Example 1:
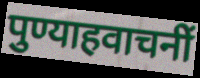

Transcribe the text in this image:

पुण्याहवाचनीं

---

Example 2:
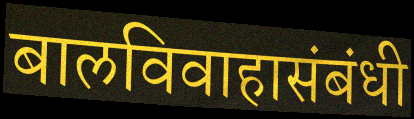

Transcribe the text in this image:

बालविवाहासंबंधी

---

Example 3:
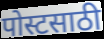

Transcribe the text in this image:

पोस्टसाठी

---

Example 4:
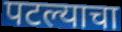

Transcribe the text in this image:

पटल्याचा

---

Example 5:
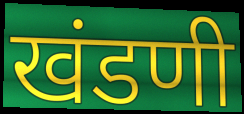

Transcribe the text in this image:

खंडणी